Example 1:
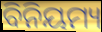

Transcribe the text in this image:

ବିନିୟମ୍ୟ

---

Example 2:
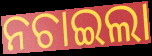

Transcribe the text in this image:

ନଚାଇଲା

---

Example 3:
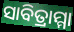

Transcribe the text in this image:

ସାବିତ୍ରାମ୍ମା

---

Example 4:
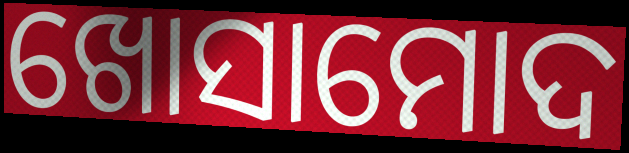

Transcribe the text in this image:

ଖୋସାମୋଦ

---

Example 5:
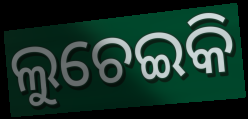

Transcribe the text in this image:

ଲୁଚେଇକି